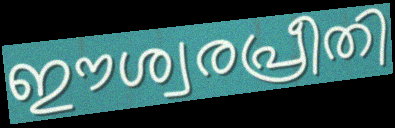
ഈശ്വരപ്രീതി